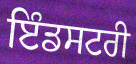
ਇੰਡਸਟਰੀ